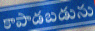
కాపాడబడును